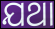
ଯଥା